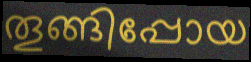
തൂങ്ങിപ്പോയ